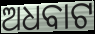
ଅଧବାଟ